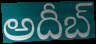
అదీబ్